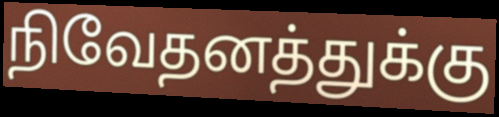
நிவேதனத்துக்கு